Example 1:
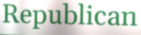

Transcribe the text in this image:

Republican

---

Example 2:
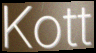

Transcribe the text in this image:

Kott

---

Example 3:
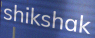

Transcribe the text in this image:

shikshak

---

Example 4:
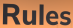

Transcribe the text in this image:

Rules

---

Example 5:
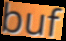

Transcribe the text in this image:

buf